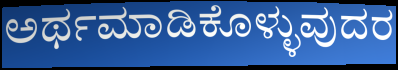
ಅರ್ಥಮಾಡಿಕೊಳ್ಳುವುದರ